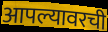
आपल्यावरची